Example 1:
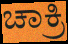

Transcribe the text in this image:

ಚಾಕ್ರಿ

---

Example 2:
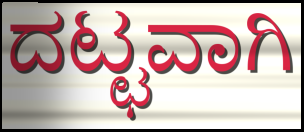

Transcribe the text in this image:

ದಟ್ಟವಾಗಿ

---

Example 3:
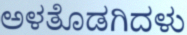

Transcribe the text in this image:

ಅಳತೊಡಗಿದಳು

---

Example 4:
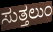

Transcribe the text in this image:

ಸುತ್ತಲುಂ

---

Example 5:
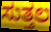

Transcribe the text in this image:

ಸುತ್ತಲ